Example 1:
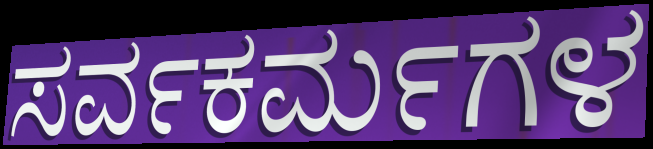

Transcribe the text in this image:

ಸರ್ವಕರ್ಮಗಳ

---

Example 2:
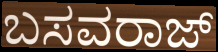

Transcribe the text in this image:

ಬಸವರಾಜ್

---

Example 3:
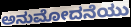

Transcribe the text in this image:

ಅನುಮೋದನೆಯು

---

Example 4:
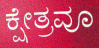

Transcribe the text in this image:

ಕ್ಷೇತ್ರವೂ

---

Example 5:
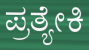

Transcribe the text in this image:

ಪ್ರತ್ಯೇಕಿ